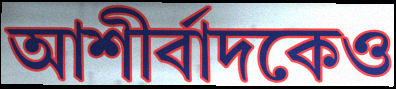
আশীর্বাদকেও